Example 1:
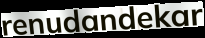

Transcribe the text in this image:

renudandekar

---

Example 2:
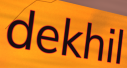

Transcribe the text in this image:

dekhil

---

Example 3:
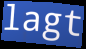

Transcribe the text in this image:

lagt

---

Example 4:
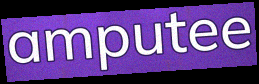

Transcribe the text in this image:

amputee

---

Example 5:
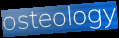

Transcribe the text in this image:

osteology